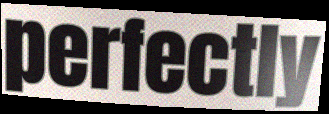
perfectly